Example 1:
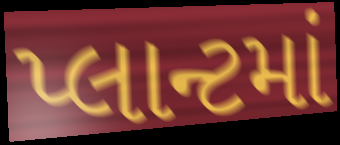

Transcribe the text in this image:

પ્લાન્ટમાં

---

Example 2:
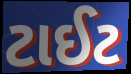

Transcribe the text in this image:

ટાઈટ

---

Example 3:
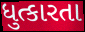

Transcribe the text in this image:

ધુત્કારતા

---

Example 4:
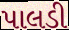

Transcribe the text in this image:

પાલડી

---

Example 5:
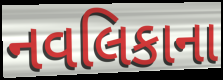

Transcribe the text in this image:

નવલિકાના